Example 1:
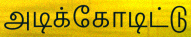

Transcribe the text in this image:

அடிக்கோடிட்டு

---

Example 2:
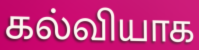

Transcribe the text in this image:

கல்வியாக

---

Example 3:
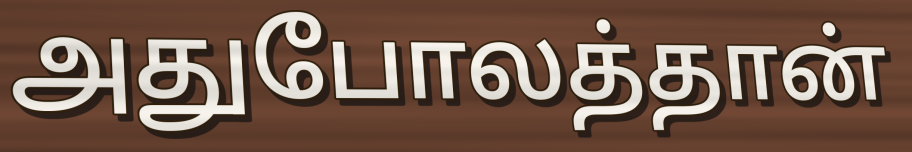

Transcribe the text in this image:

அதுபோலத்தான்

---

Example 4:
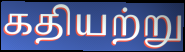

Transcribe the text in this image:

கதியற்று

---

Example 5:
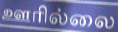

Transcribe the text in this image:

ஊரில்லை